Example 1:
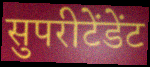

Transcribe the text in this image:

सुपरीटेंडेंट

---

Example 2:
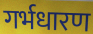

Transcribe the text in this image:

गर्भधारण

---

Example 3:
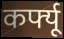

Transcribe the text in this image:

कर्फ्यू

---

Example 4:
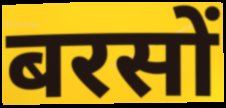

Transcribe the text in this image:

बरसों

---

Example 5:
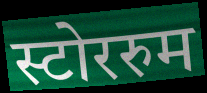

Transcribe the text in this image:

स्टोररुम